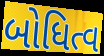
બોધિત્વ